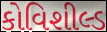
કોવિશીલ્ડ